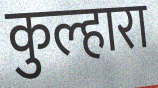
कुल्हारा